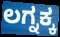
ಲಗ್ನಕ್ಕ